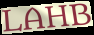
LAHB